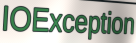
IOException